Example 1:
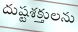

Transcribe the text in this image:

దుష్టశక్తులను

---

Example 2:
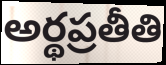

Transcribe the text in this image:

అర్థప్రతీతి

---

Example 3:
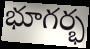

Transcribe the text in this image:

భూగర్భ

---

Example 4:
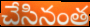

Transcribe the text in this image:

చేసినంత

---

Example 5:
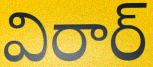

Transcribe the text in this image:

విరార్